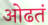
ओढतं